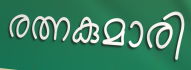
രത്നകുമാരി